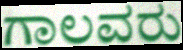
ಗಾಲವರು